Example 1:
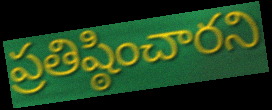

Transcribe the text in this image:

ప్రతిష్ఠించారని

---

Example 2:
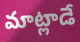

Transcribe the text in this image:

మాట్లాడే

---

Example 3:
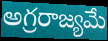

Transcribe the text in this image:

అగ్రరాజ్యమే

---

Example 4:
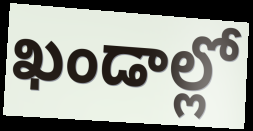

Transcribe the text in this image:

ఖండాల్లో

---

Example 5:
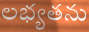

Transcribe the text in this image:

లభ్యతను